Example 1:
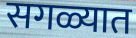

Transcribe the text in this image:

सगळ्यात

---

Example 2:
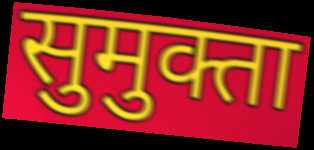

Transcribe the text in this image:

सुमुक्ता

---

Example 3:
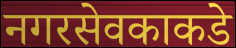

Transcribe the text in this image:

नगरसेवकाकडे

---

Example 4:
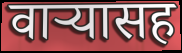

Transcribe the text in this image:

वार्‍यासह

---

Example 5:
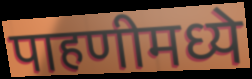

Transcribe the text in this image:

पाहणीमध्ये